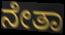
ನೇತಾ